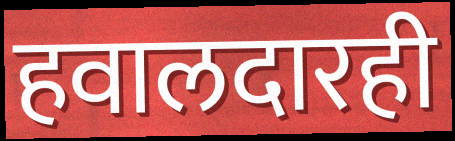
हवालदारही